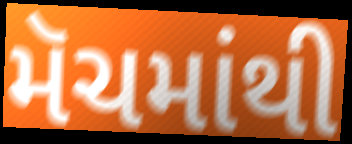
મૅચમાંથી